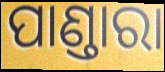
ପାଣ୍ଡାରା